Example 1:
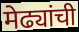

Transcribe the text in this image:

मेढ्यांची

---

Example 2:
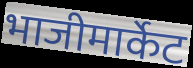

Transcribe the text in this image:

भाजीमार्केट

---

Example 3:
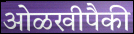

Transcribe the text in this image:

ओळखीपैकी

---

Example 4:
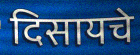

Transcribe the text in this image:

दिसायचे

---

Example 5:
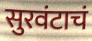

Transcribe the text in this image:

सुरवंटाचं